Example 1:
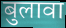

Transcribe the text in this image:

बुलावा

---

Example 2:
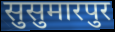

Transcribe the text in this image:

सुसुमारपुर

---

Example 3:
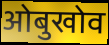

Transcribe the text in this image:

ओबुखोव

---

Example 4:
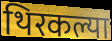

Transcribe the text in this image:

थिरकल्या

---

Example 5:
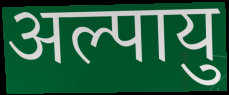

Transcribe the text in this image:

अल्पायु